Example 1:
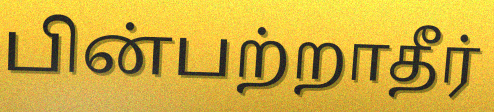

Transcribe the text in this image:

பின்பற்றாதீர்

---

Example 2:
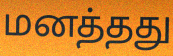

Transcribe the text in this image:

மனத்தது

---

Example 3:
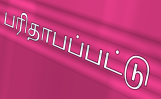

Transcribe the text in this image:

பரிதாபப்பட்டு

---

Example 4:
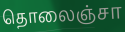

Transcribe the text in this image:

தொலைஞ்சா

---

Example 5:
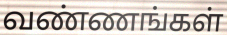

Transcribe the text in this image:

வண்ணங்கள்